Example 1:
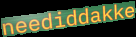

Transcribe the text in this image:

neediddakke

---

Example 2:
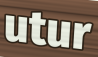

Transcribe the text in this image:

utur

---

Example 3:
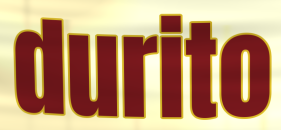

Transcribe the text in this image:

durito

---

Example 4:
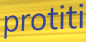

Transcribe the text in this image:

protiti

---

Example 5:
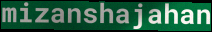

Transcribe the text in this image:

mizanshajahan